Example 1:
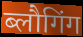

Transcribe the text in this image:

ब्लौगिंग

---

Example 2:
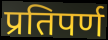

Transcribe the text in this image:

प्रतिपर्ण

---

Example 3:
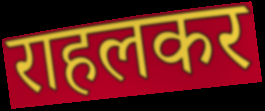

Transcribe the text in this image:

राहलकर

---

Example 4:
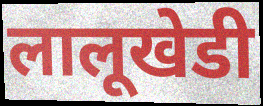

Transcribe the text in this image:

लालूखेडी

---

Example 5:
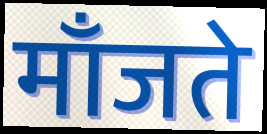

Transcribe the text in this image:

माँजते